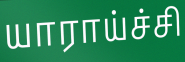
யாராய்ச்சி